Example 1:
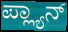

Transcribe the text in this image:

ಪ್ಲ್ಯಾನ್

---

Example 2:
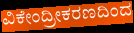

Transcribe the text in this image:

ವಿಕೇಂದ್ರೀಕರಣದಿಂದ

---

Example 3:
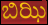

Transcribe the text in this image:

ಬಿಝಿ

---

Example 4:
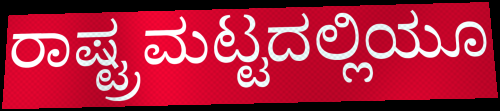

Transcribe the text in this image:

ರಾಷ್ಟ್ರಮಟ್ಟದಲ್ಲಿಯೂ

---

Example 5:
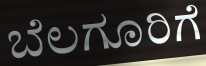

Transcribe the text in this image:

ಬೆಲಗೂರಿಗೆ